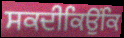
ਸਕਦੀਕਿਉਂਕਿ